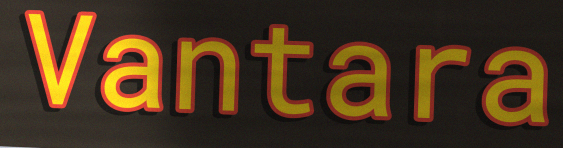
Vantara